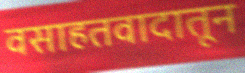
वसाहतवादातून